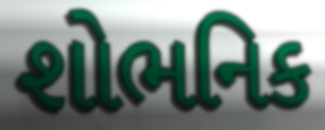
શોભનિક